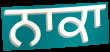
ਨਾਕਾ